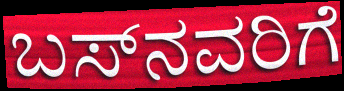
ಬಸ್‌ನವರಿಗೆ